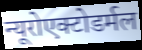
न्यूरोएक्टोडर्मल